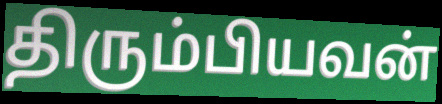
திரும்பியவன்